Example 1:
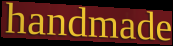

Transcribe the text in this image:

handmade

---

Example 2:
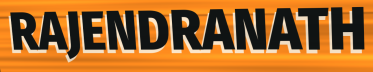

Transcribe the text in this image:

RAJENDRANATH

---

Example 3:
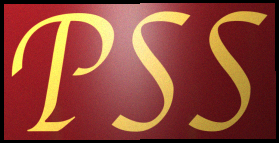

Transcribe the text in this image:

PSS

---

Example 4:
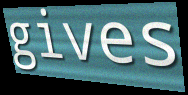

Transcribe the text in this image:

gives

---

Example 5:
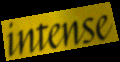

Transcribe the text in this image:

intense